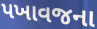
પખાવજના